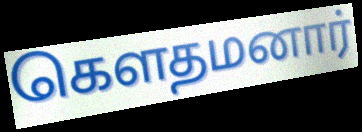
கெளதமனார்